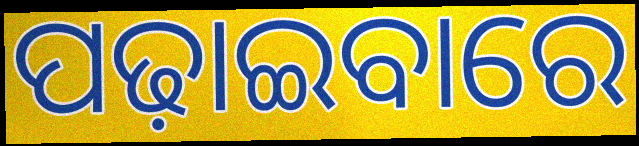
ପଢ଼ାଇବାରେ